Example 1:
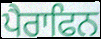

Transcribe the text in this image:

ਪੈਰਾਫਿਨ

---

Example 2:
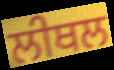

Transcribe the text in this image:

ਲੀਥਲ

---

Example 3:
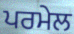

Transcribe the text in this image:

ਪਰਮੇਲ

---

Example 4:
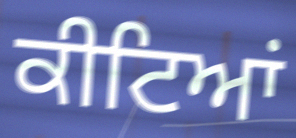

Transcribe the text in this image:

ਕੀਟਿਆਂ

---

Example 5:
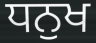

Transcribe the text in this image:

ਧਨੁਖ